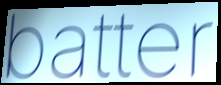
batter